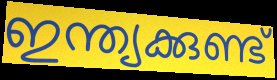
ഇന്ത്യക്കുണ്ട്